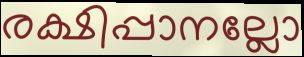
രക്ഷിപ്പാനല്ലോ